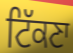
ਟਿੱਕਣਾ